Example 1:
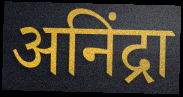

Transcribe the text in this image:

अनिंद्रा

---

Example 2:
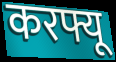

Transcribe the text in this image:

करफ्यू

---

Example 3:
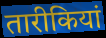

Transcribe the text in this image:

तारीकियां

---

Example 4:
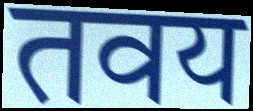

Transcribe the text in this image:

तवय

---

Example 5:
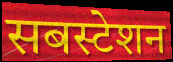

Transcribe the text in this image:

सबस्टेशन